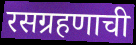
रसग्रहणाची